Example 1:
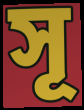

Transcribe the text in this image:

সূ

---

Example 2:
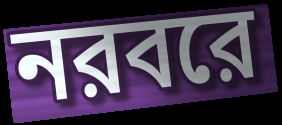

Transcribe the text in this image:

নরবরে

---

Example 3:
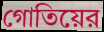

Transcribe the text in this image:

গোতিয়ের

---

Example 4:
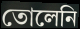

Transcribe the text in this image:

তোলেনি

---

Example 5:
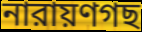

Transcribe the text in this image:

নারায়ণগছ